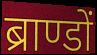
ब्राण्डों